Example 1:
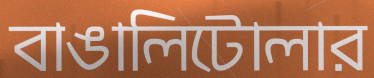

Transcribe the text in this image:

বাঙালিটোলার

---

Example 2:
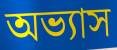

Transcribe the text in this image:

অভ্যাস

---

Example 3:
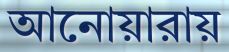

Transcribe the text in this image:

আনোয়ারায়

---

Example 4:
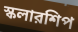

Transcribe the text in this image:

স্কলারশিপ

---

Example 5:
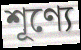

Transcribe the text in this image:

শূণ্যে